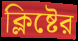
ক্লিষ্টের